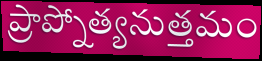
ప్రాప్నోత్యనుత్తమం